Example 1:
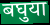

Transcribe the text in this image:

बघुया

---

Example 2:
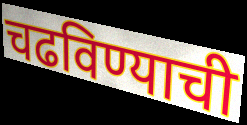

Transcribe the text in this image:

चढविण्याची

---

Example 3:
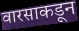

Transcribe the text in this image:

वारसाकडून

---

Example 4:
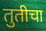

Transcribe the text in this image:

तुतीचा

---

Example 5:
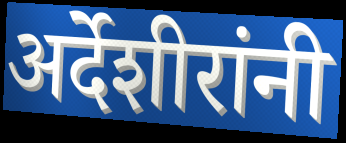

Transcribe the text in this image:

अर्देशीरांनी